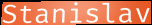
Stanislav